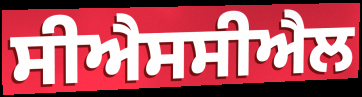
ਸੀਐਸਸੀਐਲ